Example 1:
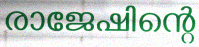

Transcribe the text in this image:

രാജേഷിന്റെ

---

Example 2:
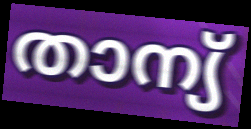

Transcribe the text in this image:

താന്യ്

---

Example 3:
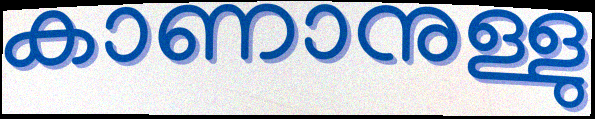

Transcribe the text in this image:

കാണാനുള്ളു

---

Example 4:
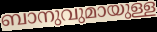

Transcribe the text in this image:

ബാനുവുമായുള്ള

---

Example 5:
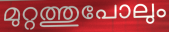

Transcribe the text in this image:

മുറ്റത്തുപോലും